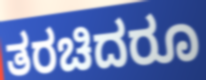
ತರಚಿದರೂ